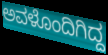
ಅವಳೊಂದಿಗಿದ್ದ